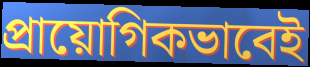
প্রায়োগিকভাবেই